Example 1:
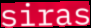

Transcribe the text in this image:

siras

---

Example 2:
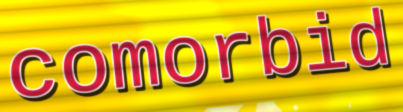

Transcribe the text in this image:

comorbid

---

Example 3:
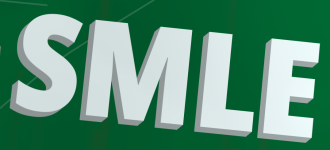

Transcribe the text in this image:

SMLE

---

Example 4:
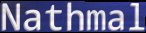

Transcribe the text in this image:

Nathmal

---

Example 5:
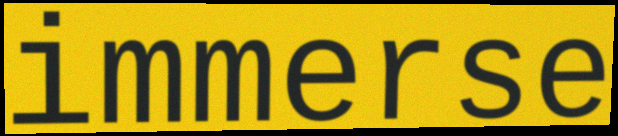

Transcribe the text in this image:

immerse